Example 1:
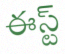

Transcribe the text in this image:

ఈస్ట్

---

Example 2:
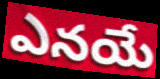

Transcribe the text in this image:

ఎనయే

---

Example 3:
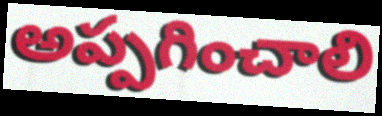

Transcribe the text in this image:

అప్పగించాలి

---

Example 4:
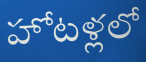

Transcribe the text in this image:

హోటళ్లలో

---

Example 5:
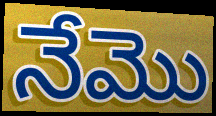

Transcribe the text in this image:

నేమొ